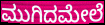
ಮುಗಿದಮೇಲೆ